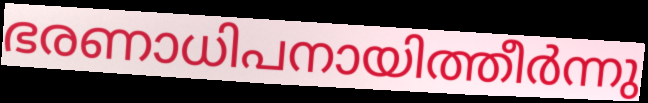
ഭരണാധിപനായിത്തീർന്നു